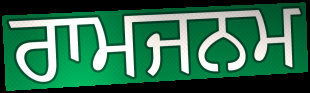
ਰਾਮਜਨਮ